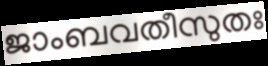
ജാംബവതീസുതഃ